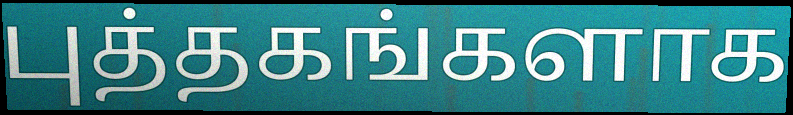
புத்தகங்களாக